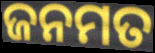
ଜନମତ